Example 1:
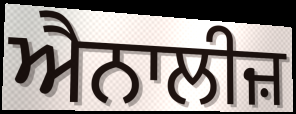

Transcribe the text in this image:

ਐਨਾਲੀਜ਼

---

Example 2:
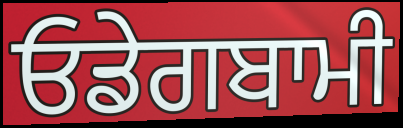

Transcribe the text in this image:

ਓਡੇਗਬਾਮੀ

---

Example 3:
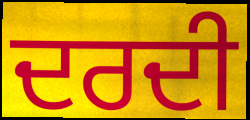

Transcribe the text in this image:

ਦਰਦੀ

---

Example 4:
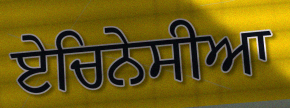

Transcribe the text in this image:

ਏਚਿਨੇਸੀਆ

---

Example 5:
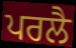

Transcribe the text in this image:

ਪਰਲੈ